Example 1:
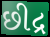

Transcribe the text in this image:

છીદ્ર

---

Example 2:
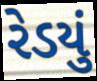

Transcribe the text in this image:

રેડયું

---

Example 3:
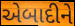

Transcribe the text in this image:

એબાદીને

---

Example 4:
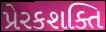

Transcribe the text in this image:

પ્રેરકશક્તિ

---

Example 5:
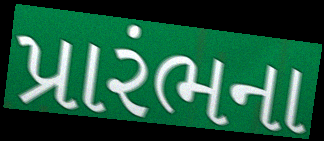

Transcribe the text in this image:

પ્રારંભના